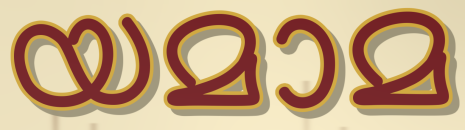
യമാമ